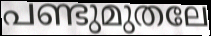
പണ്ടുമുതലേ